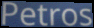
Petros